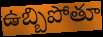
ఉబ్బిపోతూ